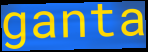
ganta